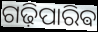
ଗଢ଼ିପାରିଵ